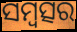
ସମ୍ବତ୍ସର